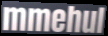
mmehul